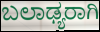
ಬಲಾಢ್ಯರಾಗಿ